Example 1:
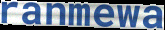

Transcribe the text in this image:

ranmewa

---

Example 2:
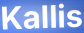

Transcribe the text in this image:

Kallis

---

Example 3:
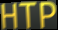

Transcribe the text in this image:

HTP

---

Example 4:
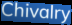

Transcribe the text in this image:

Chivalry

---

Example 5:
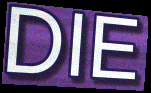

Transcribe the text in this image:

DIE